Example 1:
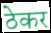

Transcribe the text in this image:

ठेकर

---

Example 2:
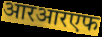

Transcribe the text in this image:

आरआरएफ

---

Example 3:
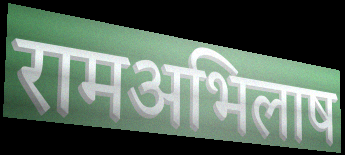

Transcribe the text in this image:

रामअभिलाष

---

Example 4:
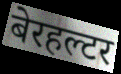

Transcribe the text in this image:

बेरहल्टर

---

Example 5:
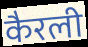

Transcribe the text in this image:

कैरली